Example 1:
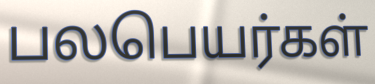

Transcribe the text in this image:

பலபெயர்கள்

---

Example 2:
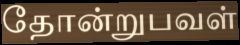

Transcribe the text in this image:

தோன்றுபவள்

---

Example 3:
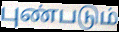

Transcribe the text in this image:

புண்படும்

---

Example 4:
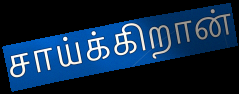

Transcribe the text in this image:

சாய்க்கிறான்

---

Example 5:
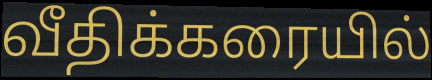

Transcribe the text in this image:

வீதிக்கரையில்